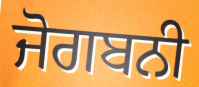
ਜੋਗਬਨੀ